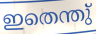
ഇതെന്തു്